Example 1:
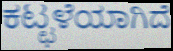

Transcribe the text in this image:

ಕಟ್ಟಳೆಯಾಗಿದೆ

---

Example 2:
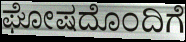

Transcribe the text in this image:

ಘೋಷದೊಂದಿಗೆ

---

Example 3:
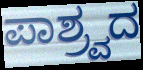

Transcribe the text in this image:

ಪಾಶ್ರ್ವದ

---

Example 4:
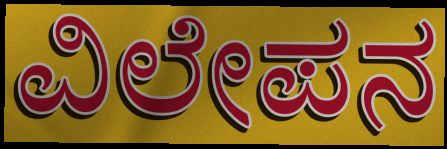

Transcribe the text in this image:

ವಿಲೇಪನ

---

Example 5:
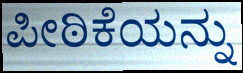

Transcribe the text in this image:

ಪೀಠಿಕೆಯನ್ನು